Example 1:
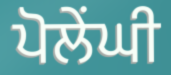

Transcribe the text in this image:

ਪੋਲੇਂਘੀ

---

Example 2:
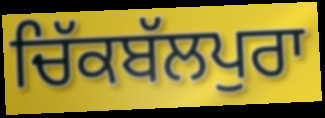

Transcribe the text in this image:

ਚਿੱਕਬੱਲਪੁਰਾ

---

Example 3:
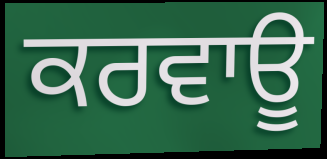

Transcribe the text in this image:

ਕਰਵਾਊ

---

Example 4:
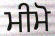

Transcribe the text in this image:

ਮੀਮੋ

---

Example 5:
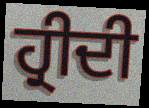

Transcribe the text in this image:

ਹ੍ਰੀਦੀ